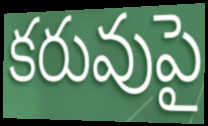
కరువుపై